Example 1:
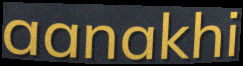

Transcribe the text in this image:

aanakhi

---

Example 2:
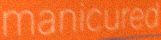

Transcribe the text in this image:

manicured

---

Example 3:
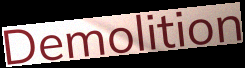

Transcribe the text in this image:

Demolition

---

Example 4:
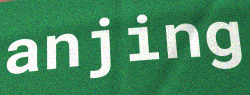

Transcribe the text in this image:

anjing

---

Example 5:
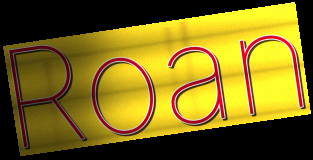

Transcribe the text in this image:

Roan